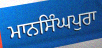
ਮਾਨਸਿੰਘਪੁਰਾ